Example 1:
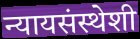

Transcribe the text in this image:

न्यायसंस्थेशी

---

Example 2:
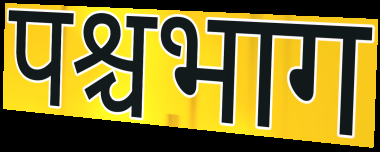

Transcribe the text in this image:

पश्चभाग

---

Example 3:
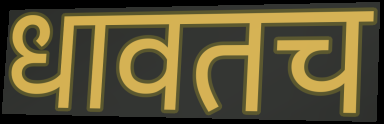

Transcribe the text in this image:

धावतच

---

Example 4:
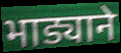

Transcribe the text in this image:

भाड्याने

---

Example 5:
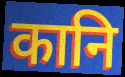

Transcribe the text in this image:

कानि